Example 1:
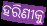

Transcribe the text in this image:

ହରିଣୀକୁ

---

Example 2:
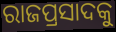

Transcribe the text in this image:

ରାଜପ୍ରସାଦକୁ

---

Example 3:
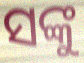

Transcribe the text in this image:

ସଙ୍କୁ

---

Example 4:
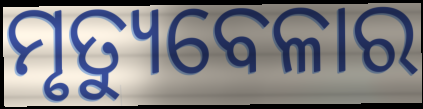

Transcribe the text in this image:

ମୃତ୍ୟୁବେଳାର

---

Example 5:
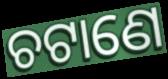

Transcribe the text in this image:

ଚଟାଣେ